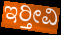
ಇರ‍್ತೀವಿ